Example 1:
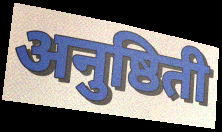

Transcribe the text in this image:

अनुष्ठिती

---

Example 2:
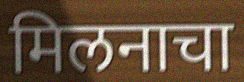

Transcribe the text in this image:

मिलनाचा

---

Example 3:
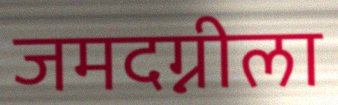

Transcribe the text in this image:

जमदग्नीला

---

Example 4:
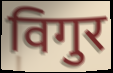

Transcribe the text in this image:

विगुर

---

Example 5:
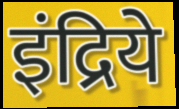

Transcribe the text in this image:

इंद्रिये